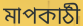
মাপকাঠী